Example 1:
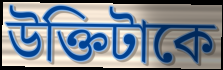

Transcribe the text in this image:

উক্তিটাকে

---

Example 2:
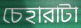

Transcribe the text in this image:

চেহারাটা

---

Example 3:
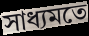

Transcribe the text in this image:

সাধ্যমতে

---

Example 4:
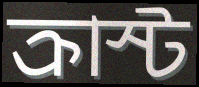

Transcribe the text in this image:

ক্রাস্ট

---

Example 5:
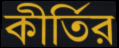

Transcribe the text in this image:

কীর্তির